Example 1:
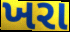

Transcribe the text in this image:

ખરા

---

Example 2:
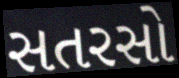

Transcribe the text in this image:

સતરસો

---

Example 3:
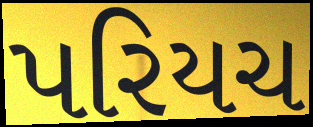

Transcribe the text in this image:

પરિયચ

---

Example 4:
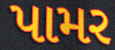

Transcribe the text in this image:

પામર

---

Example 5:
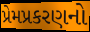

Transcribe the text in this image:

પ્રેમપ્રકરણનો